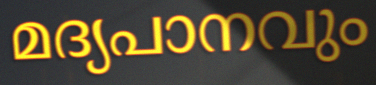
മദ്യപാനവും